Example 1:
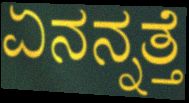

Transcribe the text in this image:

ಏನನ್ನತ್ತೆ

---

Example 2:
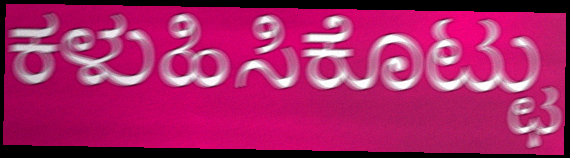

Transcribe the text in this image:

ಕಳುಹಿಸಿಕೊಟ್ಟು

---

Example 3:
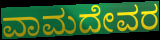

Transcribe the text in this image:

ವಾಮದೇವರ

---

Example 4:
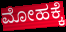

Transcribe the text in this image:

ಮೋಹಕ್ಕೆ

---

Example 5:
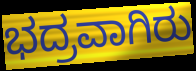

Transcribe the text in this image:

ಭದ್ರವಾಗಿರು